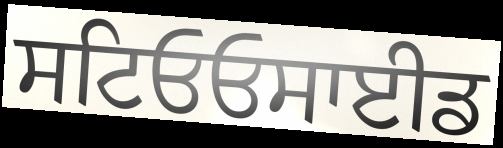
ਸਟਿਓਓਸਾਈਡ